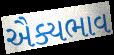
ઐક્યભાવ